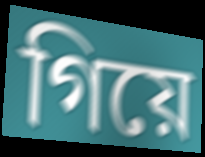
গিয়ে